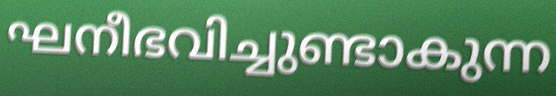
ഘനീഭവിച്ചുണ്ടാകുന്ന